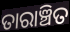
ତାରାଞ୍ଚିତ